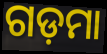
ଗଡ଼ମା